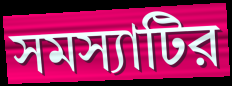
সমস্যাটির